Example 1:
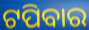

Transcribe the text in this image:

ଟପିବାର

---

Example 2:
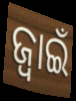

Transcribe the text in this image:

ଜ୍ବାଇଁ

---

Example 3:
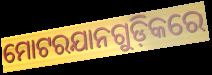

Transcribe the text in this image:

ମୋଟରଯାନଗୁଡ଼ିକରେ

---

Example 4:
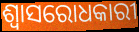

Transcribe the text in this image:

ଶ୍ୱାସରୋଧକାରୀ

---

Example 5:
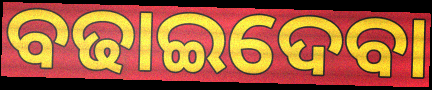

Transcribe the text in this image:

ବଢାଇଦେବା